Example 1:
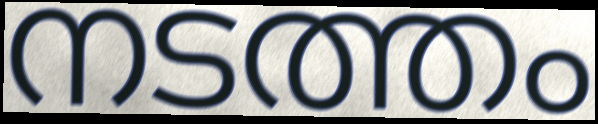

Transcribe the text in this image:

നടത്തം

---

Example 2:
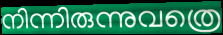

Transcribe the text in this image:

നിന്നിരുന്നുവത്രെ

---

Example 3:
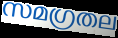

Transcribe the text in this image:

സമഗ്രതല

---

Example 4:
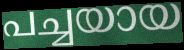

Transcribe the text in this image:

പച്ചയായ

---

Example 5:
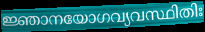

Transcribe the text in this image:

ജ്ഞാനയോഗവ്യവസ്ഥിതിഃ